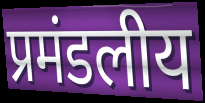
प्रमंडलीय